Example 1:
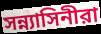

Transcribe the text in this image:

সন্ন্যাসিনীরা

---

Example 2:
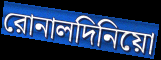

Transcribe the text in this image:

রোনালদিনিয়ো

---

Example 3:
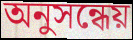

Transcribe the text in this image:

অনুসন্ধেয়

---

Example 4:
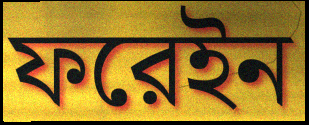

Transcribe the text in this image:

ফরেইন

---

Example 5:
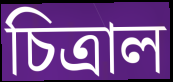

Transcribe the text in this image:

চিত্রাল